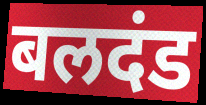
बलदंड